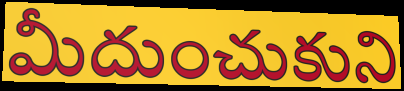
మీదుంచుకుని